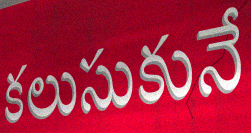
కలుసుకునే